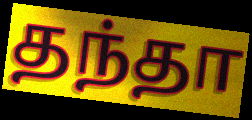
தந்தா